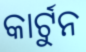
କାର୍ଟୁନ